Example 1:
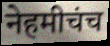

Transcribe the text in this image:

नेहमीचंच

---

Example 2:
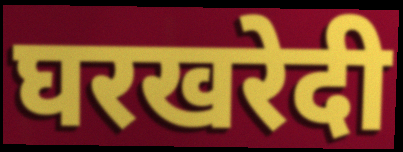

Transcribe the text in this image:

घरखरेदी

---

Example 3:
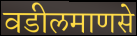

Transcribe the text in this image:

वडीलमाणसे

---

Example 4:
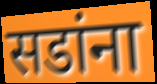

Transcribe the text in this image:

सडांना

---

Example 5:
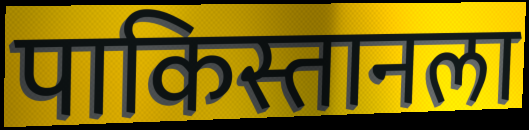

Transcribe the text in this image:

पाकिस्तानला